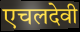
एचलदेवी